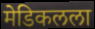
मेडिकलला